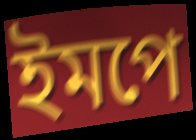
ইমপে